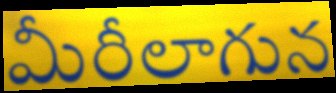
మీరీలాగున